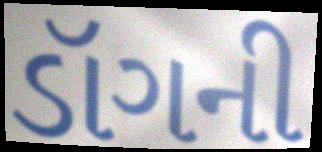
ડૉગની